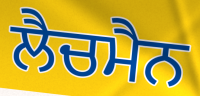
ਲੈਚਮੈਨ